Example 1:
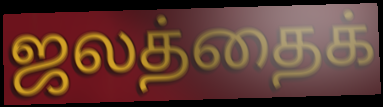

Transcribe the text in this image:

ஜலத்தைக்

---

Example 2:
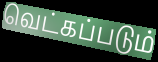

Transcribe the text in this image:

வெட்கப்படும்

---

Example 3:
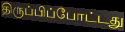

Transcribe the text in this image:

திருப்பிப்போட்டது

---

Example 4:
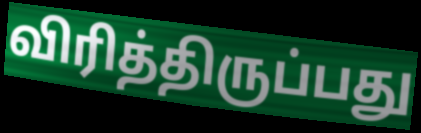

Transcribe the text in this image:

விரித்திருப்பது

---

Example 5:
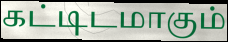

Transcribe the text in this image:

கட்டிடமாகும்